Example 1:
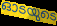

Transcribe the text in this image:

ഓടയുടെ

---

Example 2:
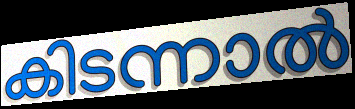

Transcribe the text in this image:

കിടന്നാൽ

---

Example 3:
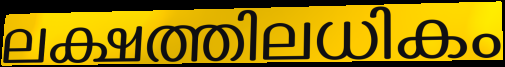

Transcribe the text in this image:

ലക്ഷത്തിലധികം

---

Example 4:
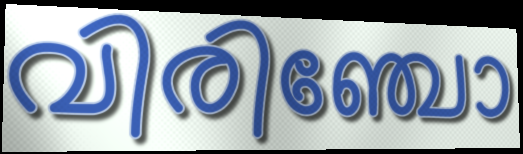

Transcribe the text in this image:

വിരിഞ്ചോ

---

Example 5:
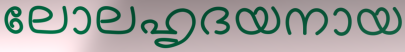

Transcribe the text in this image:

ലോലഹൃദയനായ